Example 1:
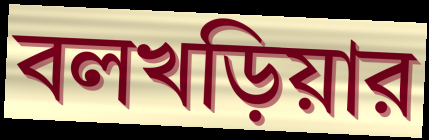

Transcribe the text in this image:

বলখড়িয়ার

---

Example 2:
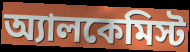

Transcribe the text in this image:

অ্যালকেমিস্ট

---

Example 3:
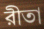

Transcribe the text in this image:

রীতা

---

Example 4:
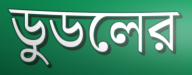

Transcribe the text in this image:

ডুডলের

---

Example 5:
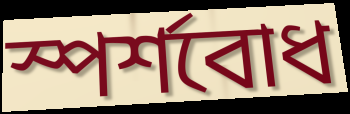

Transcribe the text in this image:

স্পর্শবোধ